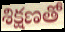
శిక్షణతో